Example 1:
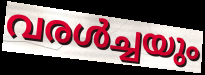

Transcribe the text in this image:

വരൾച്ചയും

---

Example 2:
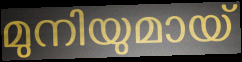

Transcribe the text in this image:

മുനിയുമായ്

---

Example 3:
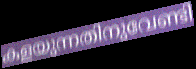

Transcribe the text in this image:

കളയുന്നതിനുവേണ്ടി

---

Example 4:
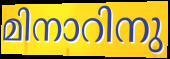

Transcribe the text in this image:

മിനാറിനു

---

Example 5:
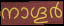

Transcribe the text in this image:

നാഗൂർ